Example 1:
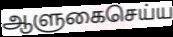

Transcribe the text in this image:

ஆளுகைசெய்ய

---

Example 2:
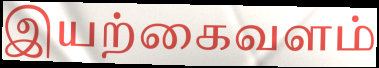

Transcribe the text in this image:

இயற்கைவளம்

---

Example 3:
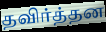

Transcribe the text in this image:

தவிர்த்தன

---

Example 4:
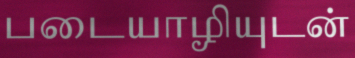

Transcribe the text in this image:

படையாழியுடன்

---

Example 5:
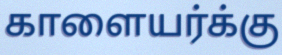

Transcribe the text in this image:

காளையர்க்கு